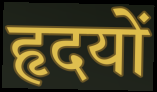
हृदयों